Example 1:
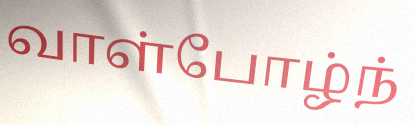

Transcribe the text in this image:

வாள்போழ்ந்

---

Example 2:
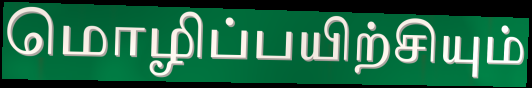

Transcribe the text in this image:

மொழிப்பயிற்சியும்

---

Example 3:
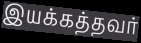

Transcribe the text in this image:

இயக்கத்தவர்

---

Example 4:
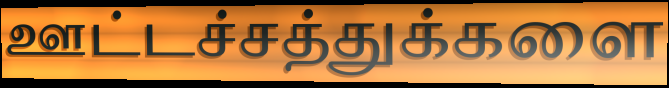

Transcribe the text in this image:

ஊட்டச்சத்துக்களை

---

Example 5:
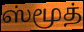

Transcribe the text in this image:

ஸ்மூத்